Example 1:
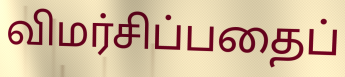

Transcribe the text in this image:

விமர்சிப்பதைப்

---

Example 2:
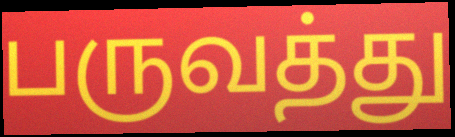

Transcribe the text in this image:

பருவத்து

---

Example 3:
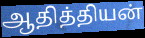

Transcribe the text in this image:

ஆதித்தியன்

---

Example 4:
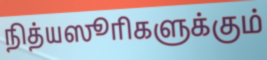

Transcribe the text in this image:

நித்யஸூரிகளுக்கும்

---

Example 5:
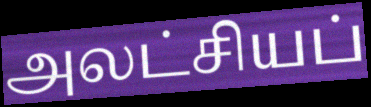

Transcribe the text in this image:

அலட்சியப்